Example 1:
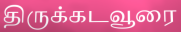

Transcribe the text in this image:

திருக்கடவூரை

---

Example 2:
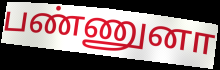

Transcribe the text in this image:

பண்ணுனா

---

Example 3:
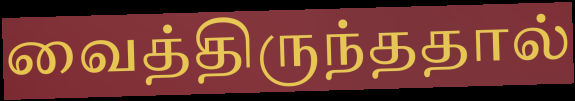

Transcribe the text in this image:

வைத்திருந்ததால்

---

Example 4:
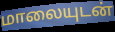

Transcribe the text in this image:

மாலையுடன்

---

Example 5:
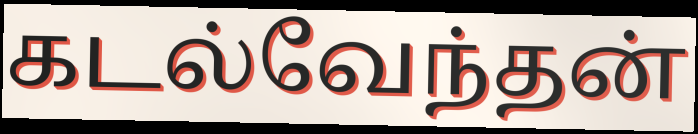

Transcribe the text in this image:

கடல்வேந்தன்